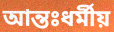
আন্তঃধর্মীয়